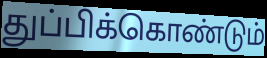
துப்பிக்கொண்டும்